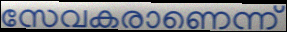
സേവകരാണെന്ന്